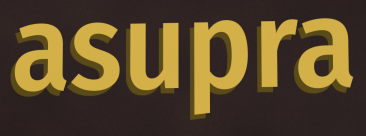
asupra